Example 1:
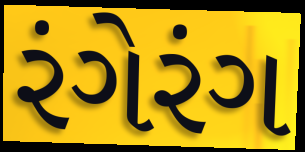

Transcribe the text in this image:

રંગેરંગ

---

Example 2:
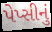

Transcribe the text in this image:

પેપ્સીનું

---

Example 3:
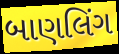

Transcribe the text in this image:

બાણલિંગ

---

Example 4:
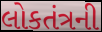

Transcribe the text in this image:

લોકતંત્રની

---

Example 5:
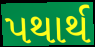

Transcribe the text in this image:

પથાર્થ